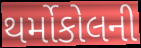
થર્મોકોલની